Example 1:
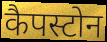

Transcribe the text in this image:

कैपस्टोन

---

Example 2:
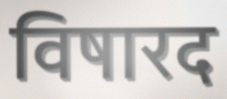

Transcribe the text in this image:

विषारद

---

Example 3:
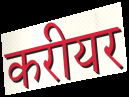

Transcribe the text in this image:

करीयर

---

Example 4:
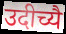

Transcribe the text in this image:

उदीच्यै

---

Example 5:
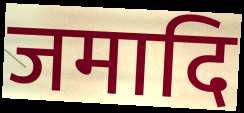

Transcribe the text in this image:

जमादि